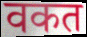
वकत